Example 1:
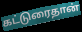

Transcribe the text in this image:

கட்டுரைதான்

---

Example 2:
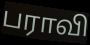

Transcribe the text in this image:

பராவி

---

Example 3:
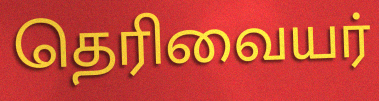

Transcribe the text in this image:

தெரிவையர்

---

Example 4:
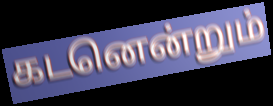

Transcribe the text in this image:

கடனென்றும்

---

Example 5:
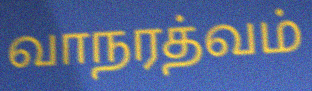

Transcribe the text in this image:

வாநரத்வம்